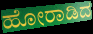
ಹೋರಾಡಿದ